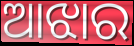
ଆଝାର